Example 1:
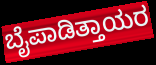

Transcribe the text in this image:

ಬೈಪಾಡಿತ್ತಾಯರ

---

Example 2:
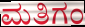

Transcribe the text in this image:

ಮತಿಗಂ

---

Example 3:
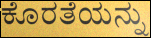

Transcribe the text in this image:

ಕೊರತೆಯನ್ನು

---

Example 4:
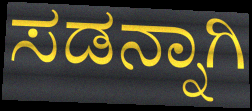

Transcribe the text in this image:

ಸಡನ್ನಾಗಿ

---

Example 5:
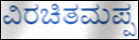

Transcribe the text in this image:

ವಿರಚಿತಮಪ್ಪ